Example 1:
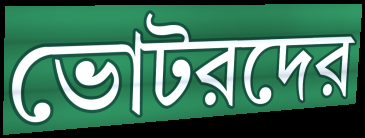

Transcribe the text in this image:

ভোটরদের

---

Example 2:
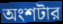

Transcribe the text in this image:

অংশটার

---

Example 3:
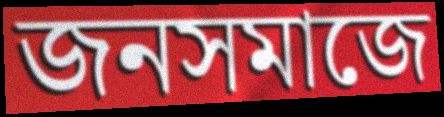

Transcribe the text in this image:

জনসমাজে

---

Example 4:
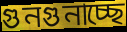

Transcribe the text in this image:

গুনগুনাচ্ছে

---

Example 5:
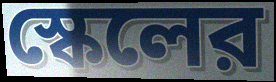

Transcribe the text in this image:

স্কেলের